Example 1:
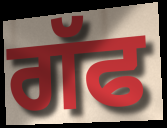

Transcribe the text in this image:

ਗੱਫ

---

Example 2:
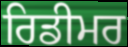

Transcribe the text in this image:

ਰਿਡੀਮਰ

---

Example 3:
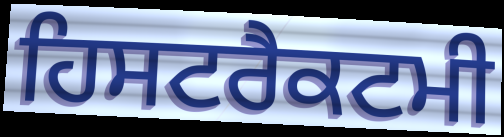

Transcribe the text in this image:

ਹਿਸਟਰੈਕਟਮੀ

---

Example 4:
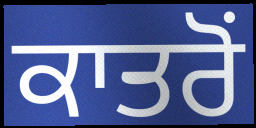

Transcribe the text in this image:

ਕਾਤਰੋੰ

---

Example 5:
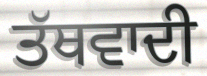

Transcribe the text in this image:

ਤੱਥਵਾਦੀ